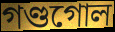
গণ্ডগোল